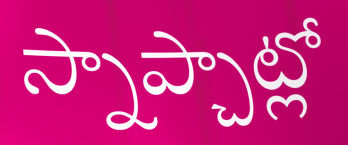
స్నాప్చాట్లో